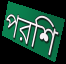
পরশি